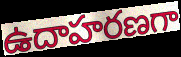
ఉదాహరణగా